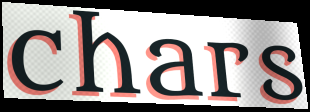
chars